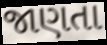
જાણતા